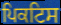
ਪਿਕਟਿਸ